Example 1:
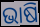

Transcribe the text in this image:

ଭାଷି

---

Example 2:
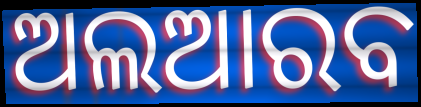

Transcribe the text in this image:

ଅଲଆରବ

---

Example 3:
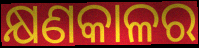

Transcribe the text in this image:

କ୍ଷଣକାଳର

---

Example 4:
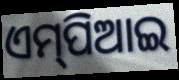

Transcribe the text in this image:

ଏମ୍‌ପିଆଇ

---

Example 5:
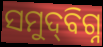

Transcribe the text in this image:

ସମୁଦ୍‌ବିଗ୍ନ